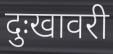
दुःखावरी